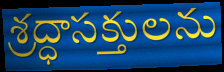
శ్రద్ధాసక్తులను